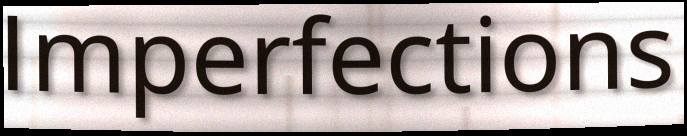
Imperfections